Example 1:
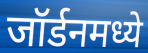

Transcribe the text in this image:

जॉर्डनमध्ये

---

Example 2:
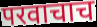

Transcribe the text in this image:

परवाचाच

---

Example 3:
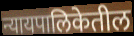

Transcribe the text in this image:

न्यायपालिकेतील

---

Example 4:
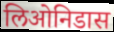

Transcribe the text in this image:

लिओनिडास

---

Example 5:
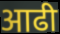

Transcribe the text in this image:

आढी